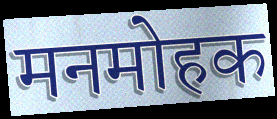
मनमोहक